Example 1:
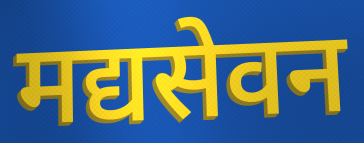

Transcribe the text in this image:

मद्यसेवन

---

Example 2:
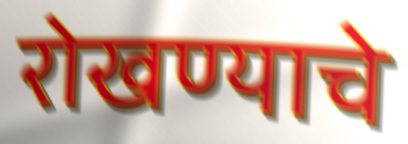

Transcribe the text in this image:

रोखण्याचे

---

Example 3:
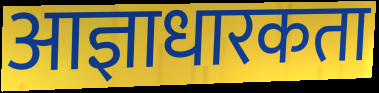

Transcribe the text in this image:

आज्ञाधारकता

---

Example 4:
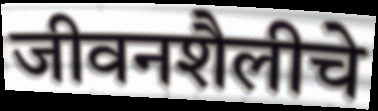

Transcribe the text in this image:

जीवनशैलीचे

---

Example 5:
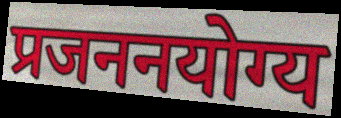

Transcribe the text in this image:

प्रजननयोग्य